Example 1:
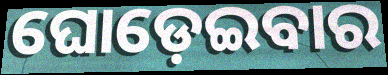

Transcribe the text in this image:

ଘୋଡ଼େଇବାର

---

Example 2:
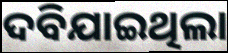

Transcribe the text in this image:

ଦବିଯାଇଥିଲା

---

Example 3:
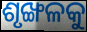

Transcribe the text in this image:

ଶୃଙ୍ଖଳକୁ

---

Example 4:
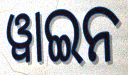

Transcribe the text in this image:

ୱାଇନ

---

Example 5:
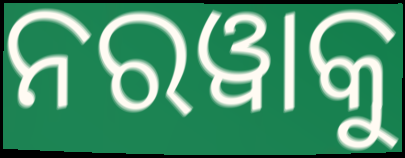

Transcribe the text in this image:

ନରୱାକୁ